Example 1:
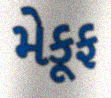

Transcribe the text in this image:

મેકૂફ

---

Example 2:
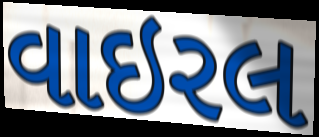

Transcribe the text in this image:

વાઇરલ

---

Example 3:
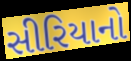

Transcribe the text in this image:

સીરિયાનો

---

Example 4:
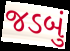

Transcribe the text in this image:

જડબું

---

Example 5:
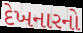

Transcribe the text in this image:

દેખનારનો